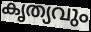
കൃത്യവും